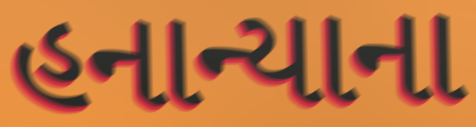
હનાન્યાના